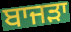
ਬਾਜਡ਼ਾ